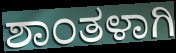
ಶಾಂತಳಾಗಿ